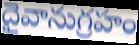
దైవానుగ్రహం